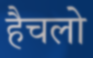
हैचलो